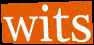
wits